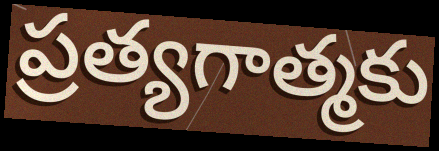
ప్రత్యగాత్మకు